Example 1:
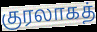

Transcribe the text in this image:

குரலாகத்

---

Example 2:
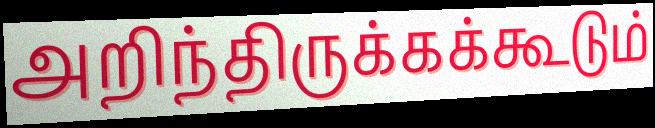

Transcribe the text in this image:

அறிந்திருக்கக்கூடும்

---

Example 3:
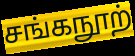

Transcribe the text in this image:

சங்கநூற்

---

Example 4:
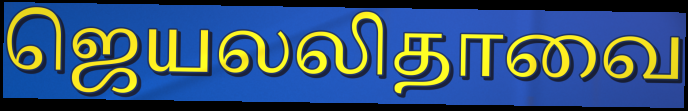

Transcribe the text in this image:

ஜெயலலிதாவை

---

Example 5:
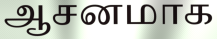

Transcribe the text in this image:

ஆசனமாக